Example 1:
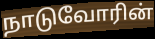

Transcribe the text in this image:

நாடுவோரின்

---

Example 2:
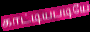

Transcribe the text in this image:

காட்டியபடியே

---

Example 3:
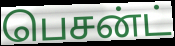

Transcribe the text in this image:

பெசன்ட்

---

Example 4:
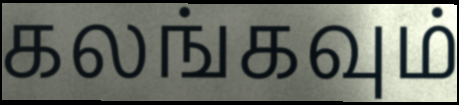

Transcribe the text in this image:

கலங்கவும்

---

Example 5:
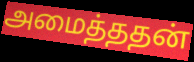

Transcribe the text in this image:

அமைத்ததன்